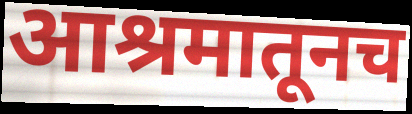
आश्रमातूनच